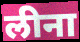
लीना